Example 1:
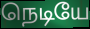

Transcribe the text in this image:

நெடியே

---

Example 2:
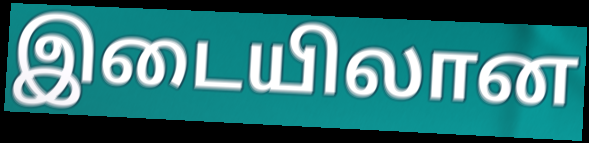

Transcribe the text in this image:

இடையிலான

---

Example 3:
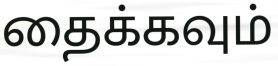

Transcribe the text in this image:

தைக்கவும்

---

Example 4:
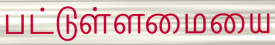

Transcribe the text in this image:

பட்டுள்ளமையை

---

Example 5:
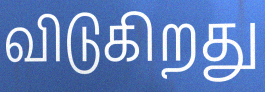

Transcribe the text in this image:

விடுகிறது